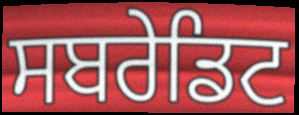
ਸਬਰੇਡਿਟ